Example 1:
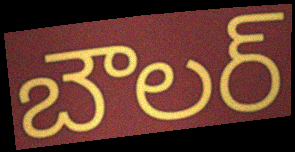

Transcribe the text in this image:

బౌలర్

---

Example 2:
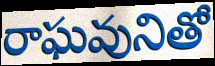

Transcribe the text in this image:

రాఘవునితో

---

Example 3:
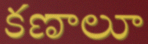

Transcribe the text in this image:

కణాలూ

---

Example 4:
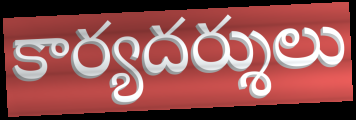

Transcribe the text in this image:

కార్యదర్శులు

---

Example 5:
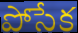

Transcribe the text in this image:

పోసేక